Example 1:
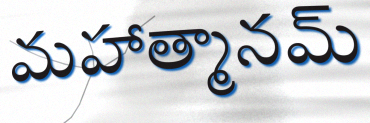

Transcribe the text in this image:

మహాత్మానమ్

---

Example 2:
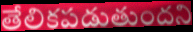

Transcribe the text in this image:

తేలికపడుతుందని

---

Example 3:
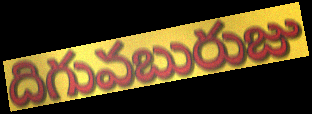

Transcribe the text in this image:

దిగువబురుజు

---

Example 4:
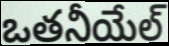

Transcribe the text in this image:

ఒతనీయేల్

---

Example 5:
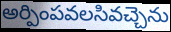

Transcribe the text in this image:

అర్పింపవలసివచ్చెను